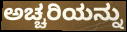
ಅಚ್ಚರಿಯನ್ನು